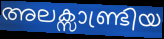
അലക്സാണ്ട്രിയ